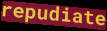
repudiate